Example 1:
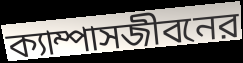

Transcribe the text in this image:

ক্যাম্পাসজীবনের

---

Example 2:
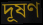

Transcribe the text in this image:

দূষণ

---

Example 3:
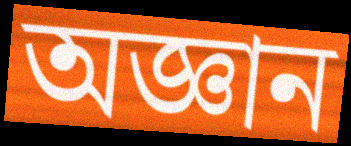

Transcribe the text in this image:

অজ্ঞান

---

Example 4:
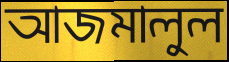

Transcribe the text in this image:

আজমালুল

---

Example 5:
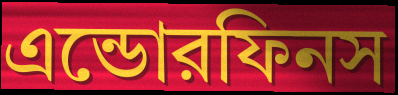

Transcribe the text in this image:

এন্ডোরফিনস